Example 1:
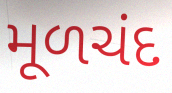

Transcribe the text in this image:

મૂળચંદ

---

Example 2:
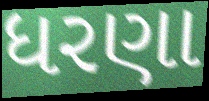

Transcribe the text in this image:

ધરણા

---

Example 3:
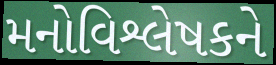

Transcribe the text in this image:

મનોવિશ્લેષકને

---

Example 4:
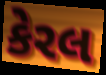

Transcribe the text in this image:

કેરલ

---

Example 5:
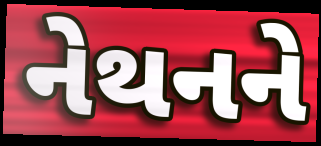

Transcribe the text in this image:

નેથનને